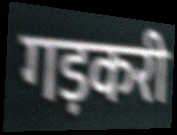
गड़करी